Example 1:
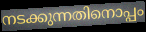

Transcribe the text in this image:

നടക്കുന്നതിനൊപ്പം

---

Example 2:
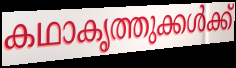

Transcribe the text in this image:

കഥാകൃത്തുക്കൾക്ക്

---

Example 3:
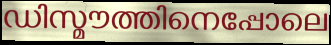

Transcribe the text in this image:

ഡിസ്മൗത്തിനെപ്പോലെ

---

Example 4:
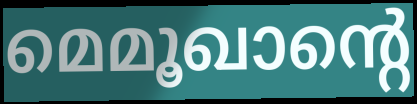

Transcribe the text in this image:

മെമൂഖാന്റെ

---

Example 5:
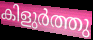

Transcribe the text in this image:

കിളുർത്തു